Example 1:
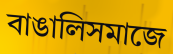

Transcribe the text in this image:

বাঙালিসমাজে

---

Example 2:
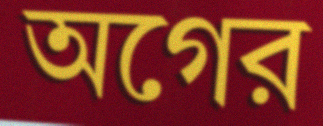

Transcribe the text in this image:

অগের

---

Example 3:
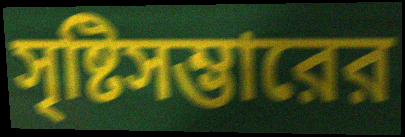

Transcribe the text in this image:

সৃষ্টিসম্ভারের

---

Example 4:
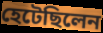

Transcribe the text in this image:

হেটেছিলেন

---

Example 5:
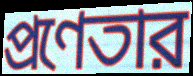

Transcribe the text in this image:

প্রণেতার